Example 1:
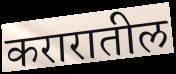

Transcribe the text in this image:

करारातील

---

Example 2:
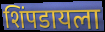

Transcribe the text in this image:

शिंपडायला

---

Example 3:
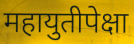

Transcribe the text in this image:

महायुतीपेक्षा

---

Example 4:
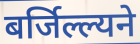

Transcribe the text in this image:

बर्जिल्ल्यने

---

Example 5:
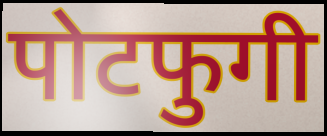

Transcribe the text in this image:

पोटफुगी